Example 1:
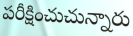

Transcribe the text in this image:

పరీక్షించుచున్నారు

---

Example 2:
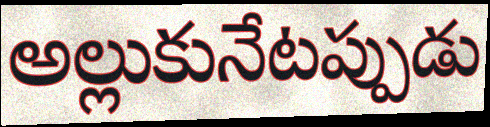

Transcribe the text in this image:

అల్లుకునేటప్పుడు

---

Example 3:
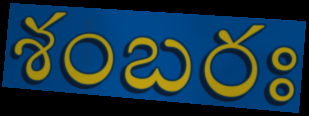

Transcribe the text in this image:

శంబరః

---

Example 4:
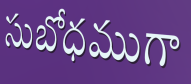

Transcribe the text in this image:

సుబోధముగా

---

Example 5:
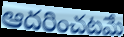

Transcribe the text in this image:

ఆదరించటమే